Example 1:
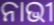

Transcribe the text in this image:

ନାଭୀ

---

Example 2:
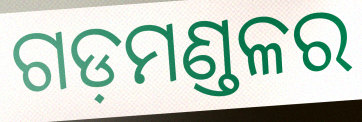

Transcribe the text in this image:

ଗଡ଼ମଣ୍ଡଳର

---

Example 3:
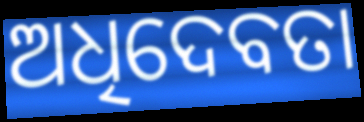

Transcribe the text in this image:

ଅଧିଦେବତା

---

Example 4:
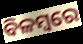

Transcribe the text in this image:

ବିଳମ୍ୱରେ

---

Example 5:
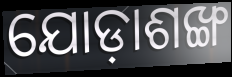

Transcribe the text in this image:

ଯୋଡ଼ାଶଙ୍ଖ